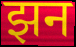
झन